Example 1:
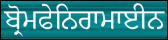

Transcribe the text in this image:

ਬ੍ਰੋਮਫੇਨਿਰਾਮਾਈਨ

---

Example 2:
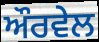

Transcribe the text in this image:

ਔਰਵੇਲ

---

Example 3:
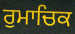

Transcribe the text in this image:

ਰੁਮਾਚਿਕ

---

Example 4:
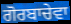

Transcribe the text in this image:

ਗੋਰਬਾਚੇਵਾ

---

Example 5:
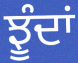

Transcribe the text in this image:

ਝੂੰਦਾਂ